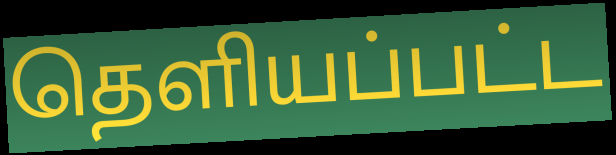
தெளியப்பட்ட